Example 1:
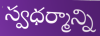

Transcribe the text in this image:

స్వధర్మాన్ని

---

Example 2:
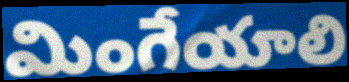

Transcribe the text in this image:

మింగేయాలి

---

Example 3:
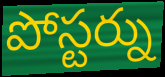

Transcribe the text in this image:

పోస్టర్ను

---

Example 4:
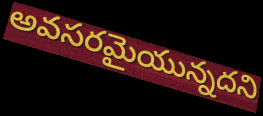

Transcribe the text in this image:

అవసరమైయున్నదని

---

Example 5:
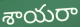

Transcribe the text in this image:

శాయరా